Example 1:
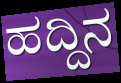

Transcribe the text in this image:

ಹದ್ದಿನ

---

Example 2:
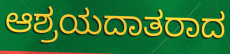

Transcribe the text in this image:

ಆಶ್ರಯದಾತರಾದ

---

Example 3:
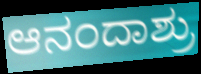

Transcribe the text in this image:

ಆನಂದಾಶ್ರು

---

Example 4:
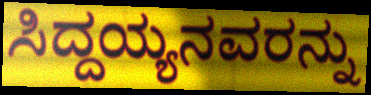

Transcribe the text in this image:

ಸಿದ್ದಯ್ಯನವರನ್ನು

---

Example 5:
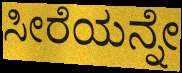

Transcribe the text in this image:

ಸೀರೆಯನ್ನೇ